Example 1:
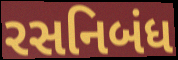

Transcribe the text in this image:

રસનિબંધ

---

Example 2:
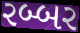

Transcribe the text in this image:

રબ્બર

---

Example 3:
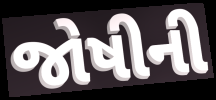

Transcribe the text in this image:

જોષીની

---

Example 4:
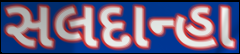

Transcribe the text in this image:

સલદાન્હા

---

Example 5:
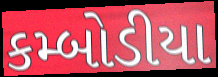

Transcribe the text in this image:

કમ્બોડીયા